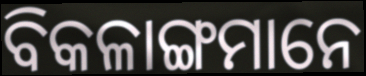
ବିକଳାଙ୍ଗମାନେ